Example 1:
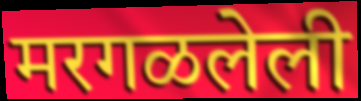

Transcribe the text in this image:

मरगळलेली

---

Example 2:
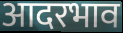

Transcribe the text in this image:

आदरभाव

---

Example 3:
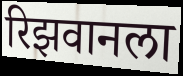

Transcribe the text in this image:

रिझवानला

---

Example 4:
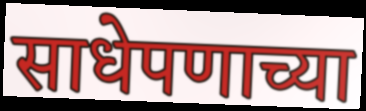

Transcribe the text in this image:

साधेपणाच्या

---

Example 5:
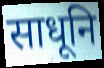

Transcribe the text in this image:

साधूनि